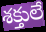
శక్తులే